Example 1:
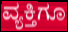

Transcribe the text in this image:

ವ್ಯಕ್ತಿಗೂ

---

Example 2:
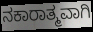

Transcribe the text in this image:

ನಕಾರಾತ್ಮವಾಗಿ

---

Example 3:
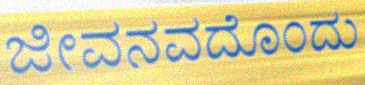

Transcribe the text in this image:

ಜೀವನವದೊಂದು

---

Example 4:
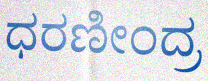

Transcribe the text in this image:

ಧರಣೀಂದ್ರ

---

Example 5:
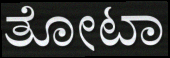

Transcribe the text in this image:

ತೋಟಾ